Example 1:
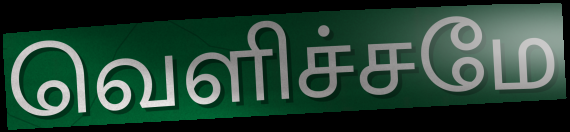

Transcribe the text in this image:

வெளிச்சமே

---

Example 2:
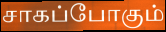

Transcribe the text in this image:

சாகப்போகும்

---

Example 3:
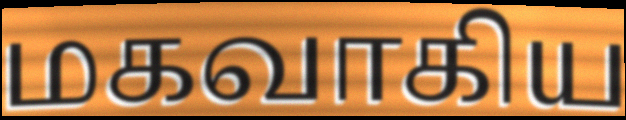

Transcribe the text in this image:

மகவாகிய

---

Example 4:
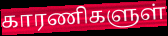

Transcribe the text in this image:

காரணிகளுள்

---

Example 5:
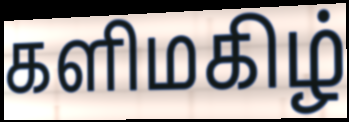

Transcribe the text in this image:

களிமகிழ்